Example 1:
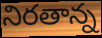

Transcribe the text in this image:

నిరతాన్న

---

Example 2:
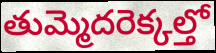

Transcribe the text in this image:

తుమ్మెదరెక్కల్తో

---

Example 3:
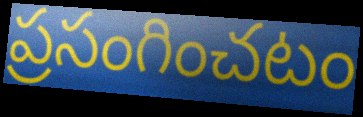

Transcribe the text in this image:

ప్రసంగించటం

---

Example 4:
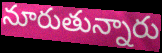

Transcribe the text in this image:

నూరుతున్నారు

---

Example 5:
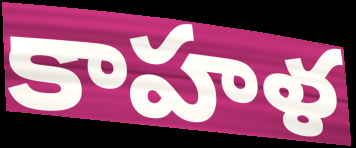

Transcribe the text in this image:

కాహళ